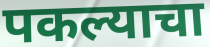
पकल्याचा